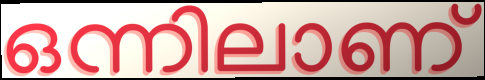
ഒന്നിലാണ്